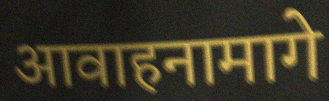
आवाहनामागे